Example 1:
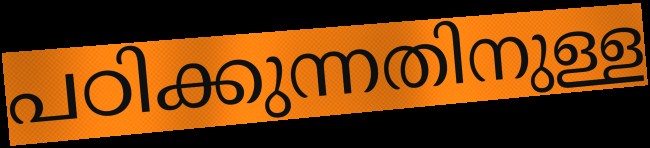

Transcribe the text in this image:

പഠിക്കുന്നതിനുള്ള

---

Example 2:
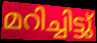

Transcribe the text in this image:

മറിച്ചിട്ടു്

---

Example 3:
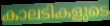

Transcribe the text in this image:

കാലടികളുടെ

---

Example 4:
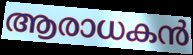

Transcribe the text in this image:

ആരാധകൻ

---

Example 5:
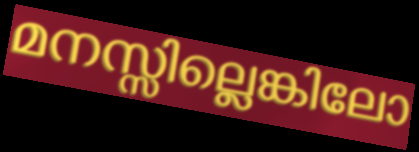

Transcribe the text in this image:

മനസ്സില്ലെങ്കിലോ